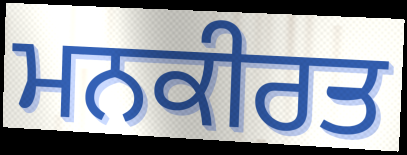
ਮਨਕੀਰਤ